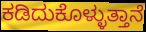
ಕಡಿದುಕೊಳ್ಳುತ್ತಾನೆ